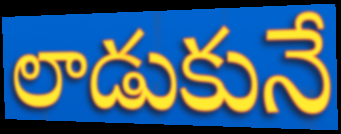
లాడుకునే